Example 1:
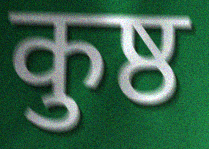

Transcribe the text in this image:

कुष्ठ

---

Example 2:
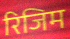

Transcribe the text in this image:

रिजिम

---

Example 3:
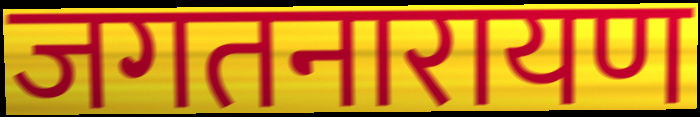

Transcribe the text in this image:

जगतनारायण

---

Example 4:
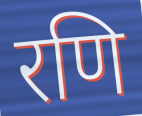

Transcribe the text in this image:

रणि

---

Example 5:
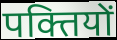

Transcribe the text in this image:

पक्तियों